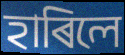
হাৰিলে